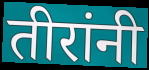
तीरांनी